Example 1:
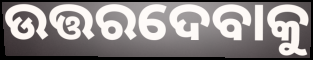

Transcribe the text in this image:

ଉତ୍ତରଦେବାକୁ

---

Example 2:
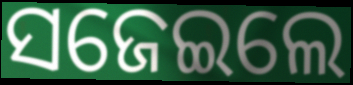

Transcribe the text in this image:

ସଜେଇଲେ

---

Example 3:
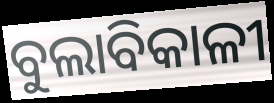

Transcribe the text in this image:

ବୁଲାବିକାଳୀ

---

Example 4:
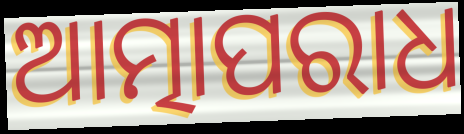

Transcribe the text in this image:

ଆତ୍ମାପରାଧ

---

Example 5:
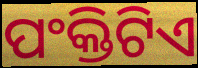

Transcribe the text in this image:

ପଂକ୍ତିଟିଏ